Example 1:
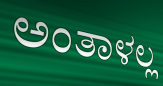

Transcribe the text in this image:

ಅಂತಾಳಲ್ಲ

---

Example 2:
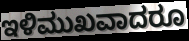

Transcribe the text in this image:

ಇಳಿಮುಖವಾದರೂ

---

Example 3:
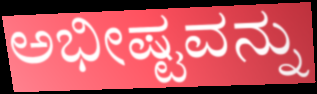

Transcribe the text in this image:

ಅಭೀಷ್ಟವನ್ನು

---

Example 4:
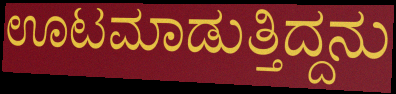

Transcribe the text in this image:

ಊಟಮಾಡುತ್ತಿದ್ದನು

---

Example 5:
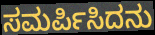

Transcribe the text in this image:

ಸಮರ್ಪಿಸಿದನು